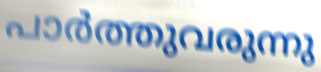
പാർത്തുവരുന്നു